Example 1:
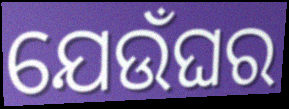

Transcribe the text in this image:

ଯେଉଁଘର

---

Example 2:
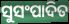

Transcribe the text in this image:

ସୁସଂପାଦିତ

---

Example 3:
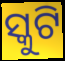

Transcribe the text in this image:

ସ୍କୁଟି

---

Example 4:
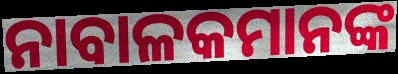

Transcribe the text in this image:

ନାବାଳକମାନଙ୍କ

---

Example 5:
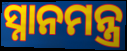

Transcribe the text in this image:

ସ୍ନାନମନ୍ତ୍ର